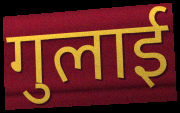
गुलाई